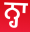
ਨ੍ਹਾ